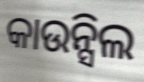
କାଉନ୍ସିଲ